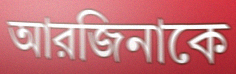
আরজিনাকে